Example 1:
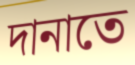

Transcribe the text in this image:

দানাতে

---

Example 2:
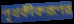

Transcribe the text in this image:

পৃথকীকরণের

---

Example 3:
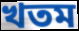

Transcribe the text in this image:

খতম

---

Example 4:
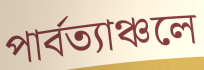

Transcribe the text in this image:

পার্বত্যাঞ্চলে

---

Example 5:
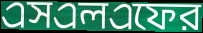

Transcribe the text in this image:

এসএলএফের